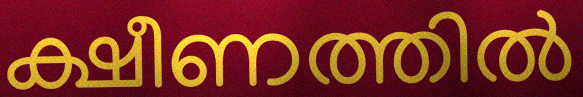
ക്ഷീണത്തിൽ